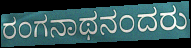
ರಂಗನಾಥನಂದರು